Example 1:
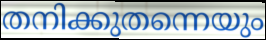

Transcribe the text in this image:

തനിക്കുതന്നെയും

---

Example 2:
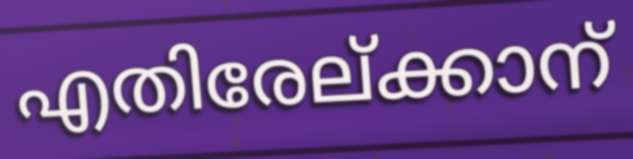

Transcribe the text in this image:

എതിരേല്ക്കാന്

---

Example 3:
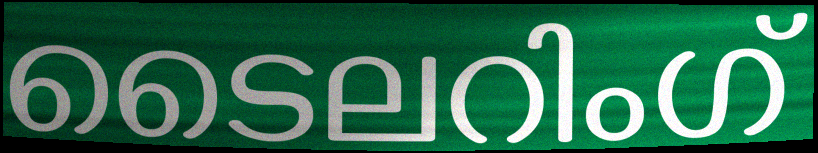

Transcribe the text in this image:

ടൈലറിംഗ്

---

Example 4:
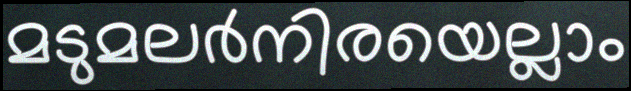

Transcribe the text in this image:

മടുമലർനിരയെല്ലാം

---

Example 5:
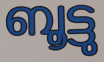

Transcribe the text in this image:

ബൂട്ടു